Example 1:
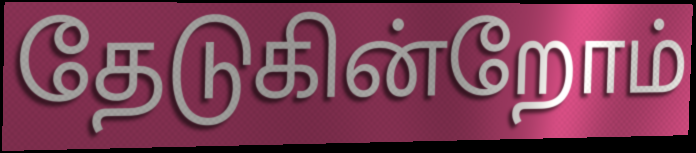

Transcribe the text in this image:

தேடுகின்றோம்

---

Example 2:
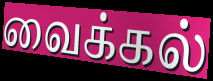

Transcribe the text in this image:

வைக்கல்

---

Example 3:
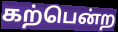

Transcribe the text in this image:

கற்பென்ற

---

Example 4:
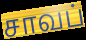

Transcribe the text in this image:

சாவப்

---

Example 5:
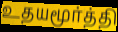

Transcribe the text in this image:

உதயமூர்த்தி